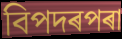
বিপদৰপৰা